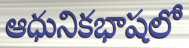
ఆధునికభాషలో